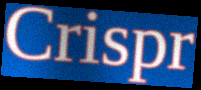
Crispr